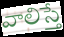
వాలిస్తే